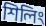
শিলিং